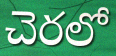
చెరలో